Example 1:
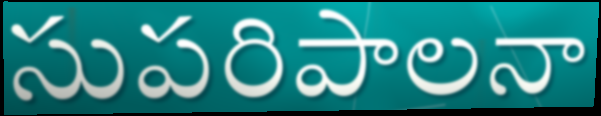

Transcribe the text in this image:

సుపరిపాలనా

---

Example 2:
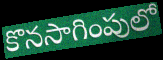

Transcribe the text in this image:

కొనసాగింపులో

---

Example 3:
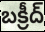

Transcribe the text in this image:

బక్రీద్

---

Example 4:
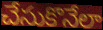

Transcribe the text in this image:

చేసుకొనేలా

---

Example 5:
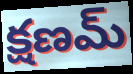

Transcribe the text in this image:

క్షణమ్